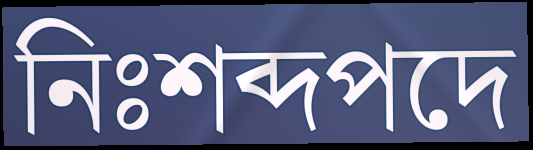
নিঃশব্দপদে